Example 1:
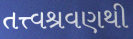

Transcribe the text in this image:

તત્ત્વશ્રવણથી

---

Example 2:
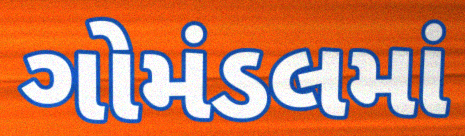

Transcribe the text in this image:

ગોમંડલમાં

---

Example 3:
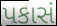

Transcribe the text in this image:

પકાસં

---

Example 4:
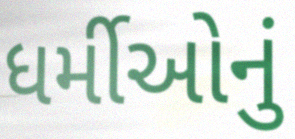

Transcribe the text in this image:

ધર્મીઓનું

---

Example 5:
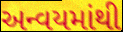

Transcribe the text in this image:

અન્વયમાંથી